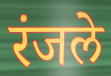
रंजले